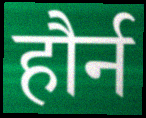
हौर्न